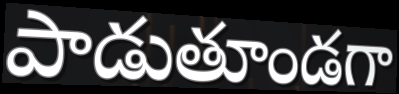
పాడుతూండగా